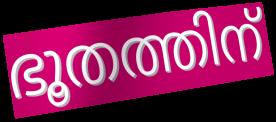
ഭൂതത്തിന്